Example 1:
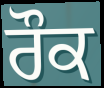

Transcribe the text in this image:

ਰੌਕ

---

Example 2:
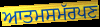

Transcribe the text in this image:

ਆਤਮਸਮੱਰਪਣ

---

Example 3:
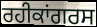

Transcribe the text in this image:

ਰਹੀਕਾਂਗਰਸ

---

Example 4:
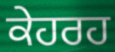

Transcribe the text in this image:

ਕੇਹਰਹ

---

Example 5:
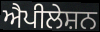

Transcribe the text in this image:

ਐਪੀਲੇਸ਼ਨ